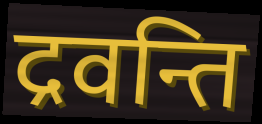
द्रवन्ति